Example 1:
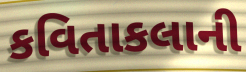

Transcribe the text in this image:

કવિતાકલાની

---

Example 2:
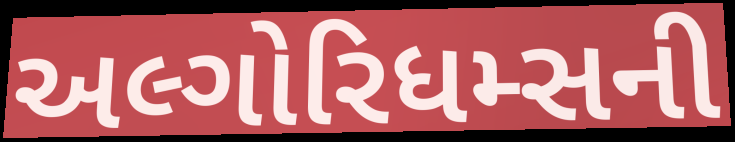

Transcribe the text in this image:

અલ્ગોરિધમ્સની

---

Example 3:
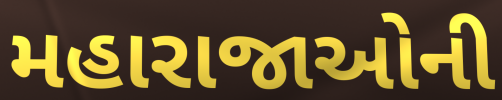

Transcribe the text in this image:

મહારાજાઓની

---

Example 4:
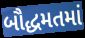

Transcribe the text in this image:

બૌદ્ધમતમાં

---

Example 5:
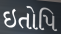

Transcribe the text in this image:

ઇતોપિ